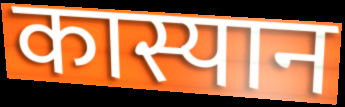
कास्यान